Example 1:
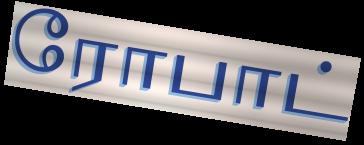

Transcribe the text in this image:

ரோபாட்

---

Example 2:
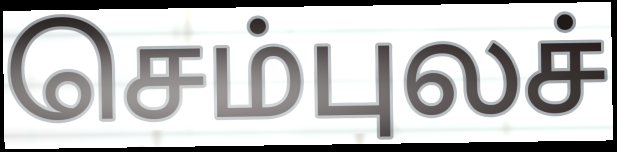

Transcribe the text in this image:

செம்புலச்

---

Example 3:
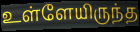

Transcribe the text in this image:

உள்ளேயிருந்த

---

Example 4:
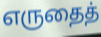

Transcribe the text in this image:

எருதைத்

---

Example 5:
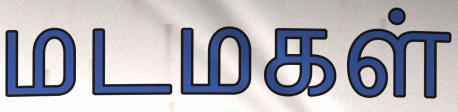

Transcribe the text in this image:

மடமகள்